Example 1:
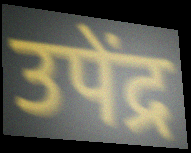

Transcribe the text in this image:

उपेंद्र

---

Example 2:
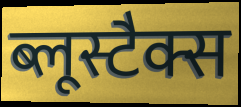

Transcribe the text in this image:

ब्लूस्टैक्स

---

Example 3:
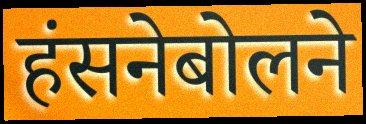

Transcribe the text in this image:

हंसनेबोलने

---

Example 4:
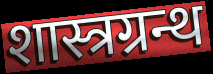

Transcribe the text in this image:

शास्त्रग्रन्थ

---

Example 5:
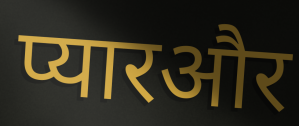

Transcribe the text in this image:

प्यारऔर